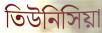
তিউনিসিয়া